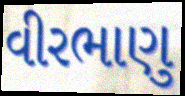
વીરભાણુ